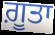
ਗ਼ੂਤਾ